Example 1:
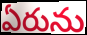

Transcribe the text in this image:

ఏరును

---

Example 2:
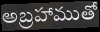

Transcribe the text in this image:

అబ్రహాముతో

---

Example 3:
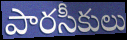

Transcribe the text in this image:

పారసీకులు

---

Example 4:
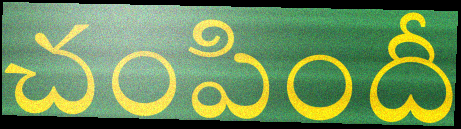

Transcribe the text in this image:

చంపిందీ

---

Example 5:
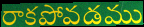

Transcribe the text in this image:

రాకపోవడము